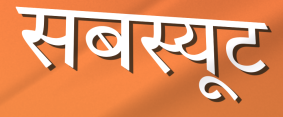
सबस्यूट